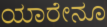
ಯಾರೇನೂ